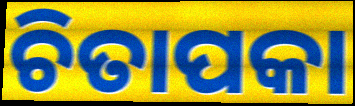
ଚିତାପକା